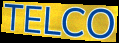
TELCO